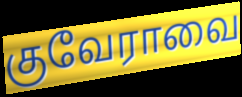
குவேராவை